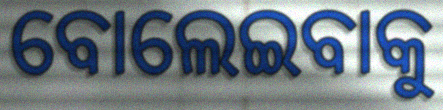
ବୋଲେଇବାକୁ